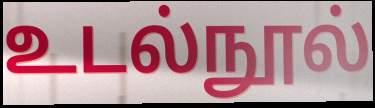
உடல்நூல்